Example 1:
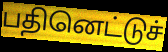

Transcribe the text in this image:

பதினெட்டுச்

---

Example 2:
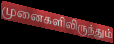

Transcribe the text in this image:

முனைகளிலிருந்தும்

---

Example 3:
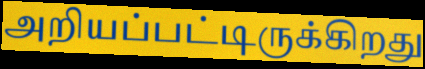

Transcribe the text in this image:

அறியப்பட்டிருக்கிறது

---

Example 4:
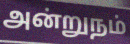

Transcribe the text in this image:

அன்றுநம்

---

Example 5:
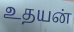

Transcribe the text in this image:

உதயன்